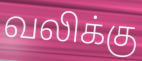
வலிக்கு